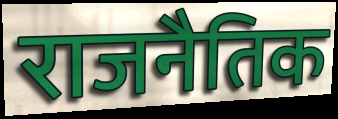
राजनैतिक